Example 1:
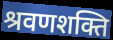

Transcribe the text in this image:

श्रवणशक्ति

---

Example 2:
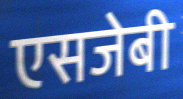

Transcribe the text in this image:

एसजेबी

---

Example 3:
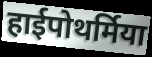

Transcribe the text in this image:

हाईपोथर्मिया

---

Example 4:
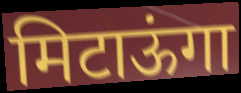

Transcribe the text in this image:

मिटाऊंगा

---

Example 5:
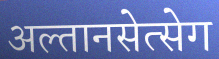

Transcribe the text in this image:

अल्तानसेत्सेग